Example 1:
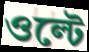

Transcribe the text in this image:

ওল্টে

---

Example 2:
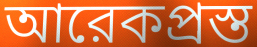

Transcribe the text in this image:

আরেকপ্রস্ত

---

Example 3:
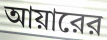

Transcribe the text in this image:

আয়ারের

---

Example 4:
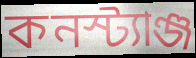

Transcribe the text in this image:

কনস্ট্যাঞ্জ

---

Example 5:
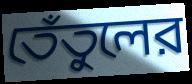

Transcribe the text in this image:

তেঁতুলের